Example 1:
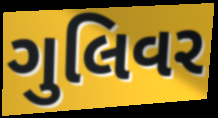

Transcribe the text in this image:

ગુલિવર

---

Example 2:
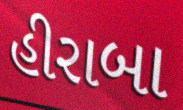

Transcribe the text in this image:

હીરાબા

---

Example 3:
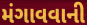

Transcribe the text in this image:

મંગાવવાની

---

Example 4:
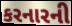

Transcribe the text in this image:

કરનારની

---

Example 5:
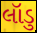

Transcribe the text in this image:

લૉડુ